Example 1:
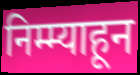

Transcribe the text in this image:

निम्म्याहून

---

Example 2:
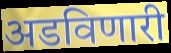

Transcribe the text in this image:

अडविणारी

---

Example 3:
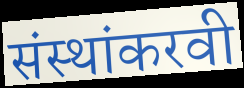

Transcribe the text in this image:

संस्थांकरवी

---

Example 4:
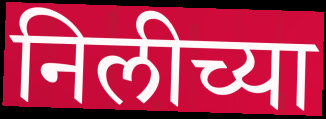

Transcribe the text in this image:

निलीच्या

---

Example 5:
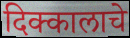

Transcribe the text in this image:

दिक्कालाचे